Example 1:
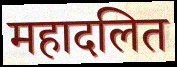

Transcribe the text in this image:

महादलित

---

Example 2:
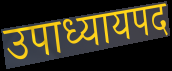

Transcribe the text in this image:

उपाध्यायपद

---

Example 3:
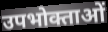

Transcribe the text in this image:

उपभोक्ताओं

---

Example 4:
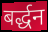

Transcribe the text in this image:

बर्द्धन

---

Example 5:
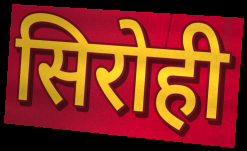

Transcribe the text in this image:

सिरोही